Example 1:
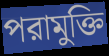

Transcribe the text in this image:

পরামুক্তি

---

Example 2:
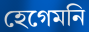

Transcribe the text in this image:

হেগেমনি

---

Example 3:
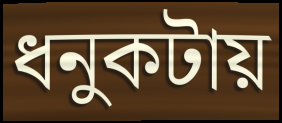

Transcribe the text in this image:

ধনুকটায়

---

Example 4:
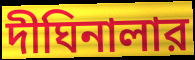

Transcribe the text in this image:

দীঘিনালার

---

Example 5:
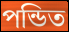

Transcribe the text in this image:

পন্ডিত